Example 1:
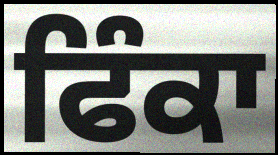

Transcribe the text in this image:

ਫਿੰਕਾ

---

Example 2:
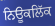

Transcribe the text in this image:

ਨਿਊਕਲਿੱਕ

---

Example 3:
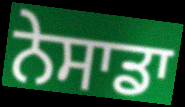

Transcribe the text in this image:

ਨੇਸਾਡਾ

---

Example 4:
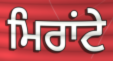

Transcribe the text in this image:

ਮਿਰਾਂਟੇ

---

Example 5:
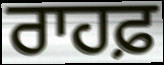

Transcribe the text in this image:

ਰਾਹਫ਼